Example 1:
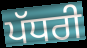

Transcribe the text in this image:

ਪੱਧਰੀ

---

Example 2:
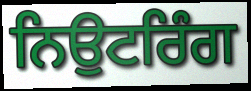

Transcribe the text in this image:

ਨਿਉਟਰਿੰਗ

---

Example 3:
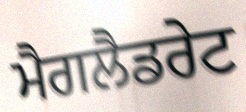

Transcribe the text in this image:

ਮੈਗਲੈਡਰੇਟ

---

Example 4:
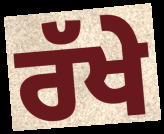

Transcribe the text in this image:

ਰੱਖੇ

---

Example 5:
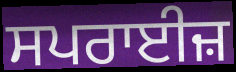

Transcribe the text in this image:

ਸਪਰਾਈਜ਼